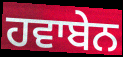
ਹਵਾਬੇਨ